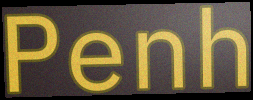
Penh